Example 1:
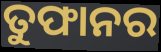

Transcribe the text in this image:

ତୁଫାନର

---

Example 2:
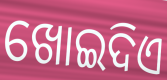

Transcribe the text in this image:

ଖୋଇଦିଏ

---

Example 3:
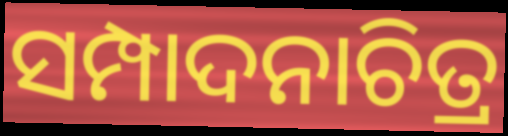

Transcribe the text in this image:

ସମ୍ପାଦନାଚିତ୍ର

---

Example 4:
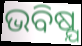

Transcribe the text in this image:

ଭବିଷ୍ଯ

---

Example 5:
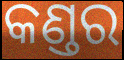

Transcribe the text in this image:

କଣ୍ଡର